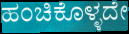
ಹಂಚಿಕೊಳ್ಳದೇ